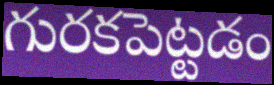
గురకపెట్టడం